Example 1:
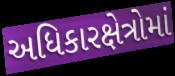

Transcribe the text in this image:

અધિકારક્ષેત્રોમાં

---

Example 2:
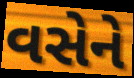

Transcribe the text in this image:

વસેને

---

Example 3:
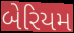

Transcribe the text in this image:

બેરિયમ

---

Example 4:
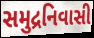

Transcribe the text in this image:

સમુદ્રનિવાસી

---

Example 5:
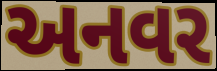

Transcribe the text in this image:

અનવર